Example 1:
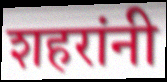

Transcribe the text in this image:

शहरांनी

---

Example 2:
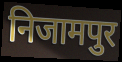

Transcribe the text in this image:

निजामपुर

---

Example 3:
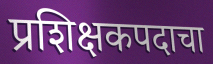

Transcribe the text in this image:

प्रशिक्षकपदाचा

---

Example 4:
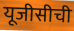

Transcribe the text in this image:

यूजीसीची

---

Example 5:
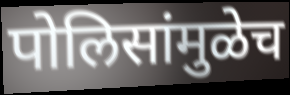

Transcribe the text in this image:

पोलिसांमुळेच